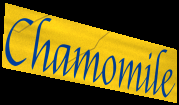
Chamomile